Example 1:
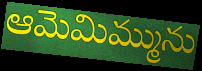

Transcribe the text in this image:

ఆమెమిమ్మును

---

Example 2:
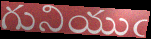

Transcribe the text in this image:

గునియుఁ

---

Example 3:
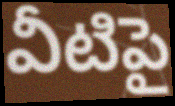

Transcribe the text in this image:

వీటిపై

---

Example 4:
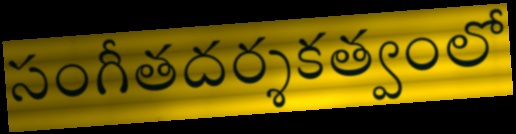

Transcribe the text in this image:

సంగీతదర్శకత్వంలో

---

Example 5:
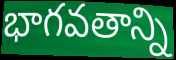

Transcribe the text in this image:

భాగవతాన్ని